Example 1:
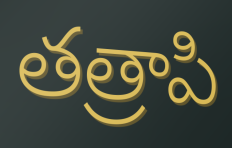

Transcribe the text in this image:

తత్రాపి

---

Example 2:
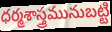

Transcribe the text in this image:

ధర్మశాస్త్రమునుబట్టి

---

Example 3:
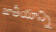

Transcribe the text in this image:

జాతీయాన్ని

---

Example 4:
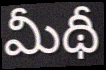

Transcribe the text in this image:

మీథీ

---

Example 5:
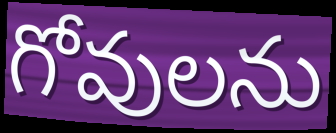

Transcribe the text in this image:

గోవులను